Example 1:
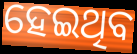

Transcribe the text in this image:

ହେଇଥିବ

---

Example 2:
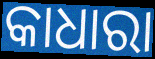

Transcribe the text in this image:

କାଧାରା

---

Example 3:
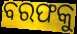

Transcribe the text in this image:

ବରଫକୁ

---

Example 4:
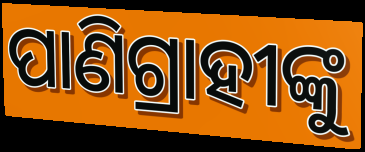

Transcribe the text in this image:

ପାଣିଗ୍ରାହୀଙ୍କୁ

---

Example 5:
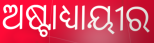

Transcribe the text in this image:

ଅଷ୍ଟାଧ୍ଯାୟୀର